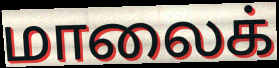
மாலைக்